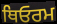
ਥਿਓਰਮ